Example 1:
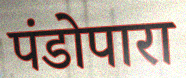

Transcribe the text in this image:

पंडोपारा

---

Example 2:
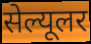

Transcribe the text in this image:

सेल्यूलर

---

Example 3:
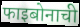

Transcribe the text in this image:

फाइबोनाची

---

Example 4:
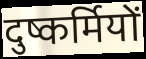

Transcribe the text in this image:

दुष्कर्मियों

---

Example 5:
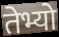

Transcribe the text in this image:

तेभ्यो